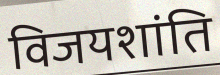
विजयशांति